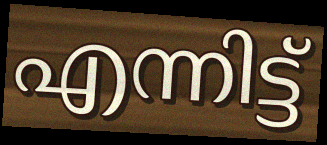
എന്നിട്ട്